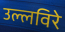
उल्लविरे